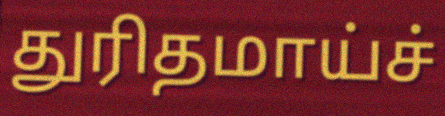
துரிதமாய்ச்